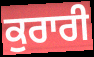
ਕੁਰਾਰੀ